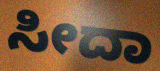
ಸೀದಾ